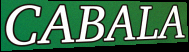
CABALA